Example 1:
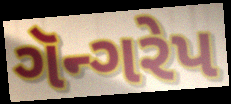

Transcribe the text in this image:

ગૅન્ગરેપ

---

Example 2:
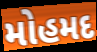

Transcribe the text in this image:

મોહમદ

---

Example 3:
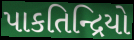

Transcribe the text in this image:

પાકતિન્દ્રિયો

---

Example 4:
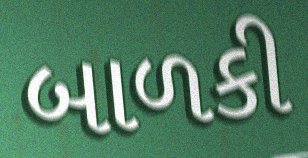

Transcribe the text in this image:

બાળકી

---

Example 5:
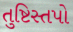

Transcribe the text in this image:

તુષ્ટિસ્તપો